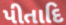
પીતાદિ